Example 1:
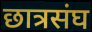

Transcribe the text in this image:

छात्रसंघ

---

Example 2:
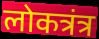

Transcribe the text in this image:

लोकत्रंत्र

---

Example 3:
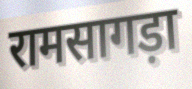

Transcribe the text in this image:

रामसागड़ा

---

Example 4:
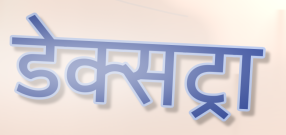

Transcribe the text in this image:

डेक्सट्रा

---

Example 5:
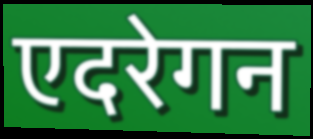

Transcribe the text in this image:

एदरेगन